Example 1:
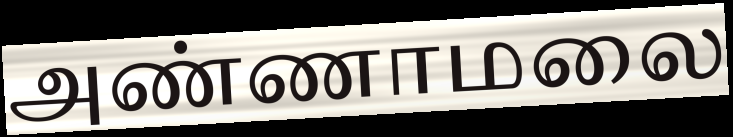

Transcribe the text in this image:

அண்ணாமலை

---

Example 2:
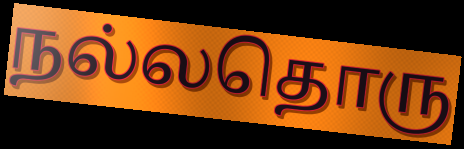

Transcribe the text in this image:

நல்லதொரு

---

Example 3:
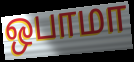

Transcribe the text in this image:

ஒபாமா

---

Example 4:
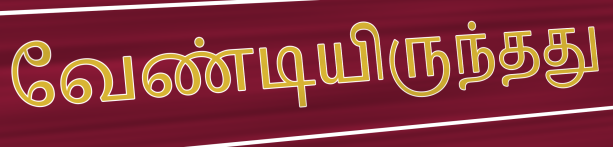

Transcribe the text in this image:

வேண்டியிருந்தது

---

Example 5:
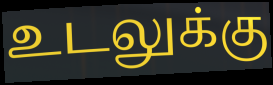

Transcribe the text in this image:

உடலுக்கு